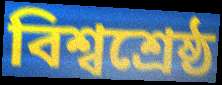
বিশ্বশ্ৰেষ্ঠ